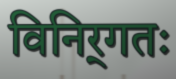
विनिर्गतः